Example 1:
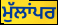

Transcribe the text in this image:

ਮੁੱਲਾਂਪਰ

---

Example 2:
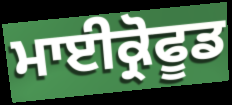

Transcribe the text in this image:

ਮਾਈਕ੍ਰੋਫੂਡ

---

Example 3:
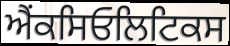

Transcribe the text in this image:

ਐਂਕਸਿਓਲਿਟਿਕਸ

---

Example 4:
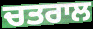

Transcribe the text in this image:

ਚਤਰਾਲ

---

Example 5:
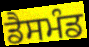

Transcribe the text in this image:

ਡੈਸਮੰਡ